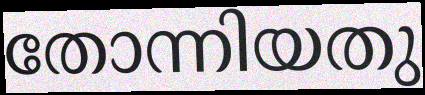
തോന്നിയതു